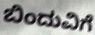
ಬಿಂದುವಿಗೆ